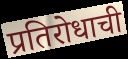
प्रतिरोधाची